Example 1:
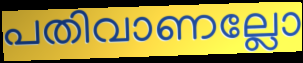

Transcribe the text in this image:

പതിവാണല്ലോ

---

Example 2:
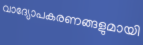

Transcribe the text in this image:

വാദ്യോപകരണങ്ങളുമായി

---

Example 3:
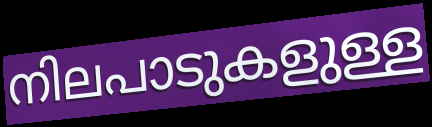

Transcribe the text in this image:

നിലപാടുകളുള്ള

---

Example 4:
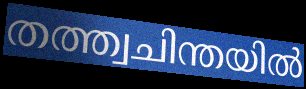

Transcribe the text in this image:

തത്ത്വചിന്തയിൽ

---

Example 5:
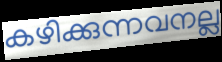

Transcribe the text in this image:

കഴിക്കുന്നവനല്ല